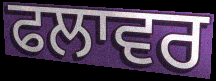
ਫਲਾਵਰ